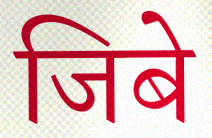
जिबे